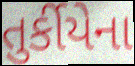
તુર્કીયેના